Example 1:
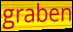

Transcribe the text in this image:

graben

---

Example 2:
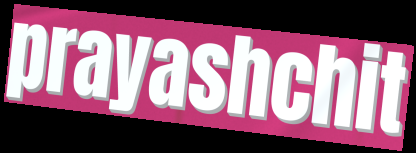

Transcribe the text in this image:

prayashchit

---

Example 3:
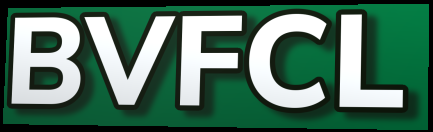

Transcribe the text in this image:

BVFCL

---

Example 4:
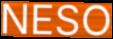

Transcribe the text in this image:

NESO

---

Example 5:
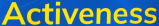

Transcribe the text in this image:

Activeness